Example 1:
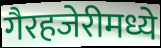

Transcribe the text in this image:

गैरहजेरीमध्ये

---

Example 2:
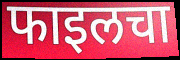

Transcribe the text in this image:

फाइलचा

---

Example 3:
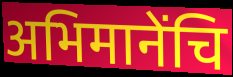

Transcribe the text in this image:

अभिमानेंचि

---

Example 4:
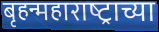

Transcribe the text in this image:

बृहन्महाराष्ट्राच्या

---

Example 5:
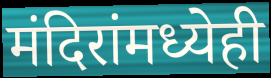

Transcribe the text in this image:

मंदिरांमध्येही